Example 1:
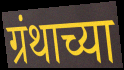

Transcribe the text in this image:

ग्रंथाच्या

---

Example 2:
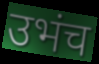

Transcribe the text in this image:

उभंच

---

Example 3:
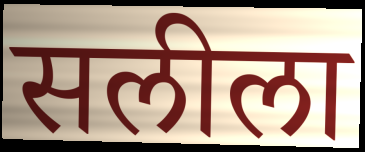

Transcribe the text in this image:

सलीला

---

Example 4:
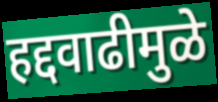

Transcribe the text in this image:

हद्दवाढीमुळे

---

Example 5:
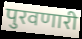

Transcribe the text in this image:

पुरवणारी